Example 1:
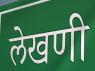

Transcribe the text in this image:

लेखणी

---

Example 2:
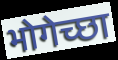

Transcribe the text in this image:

भोगेच्छा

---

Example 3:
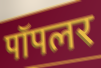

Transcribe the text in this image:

पॉपलर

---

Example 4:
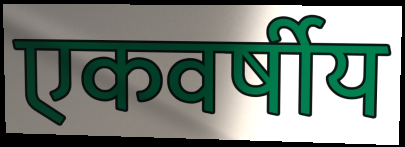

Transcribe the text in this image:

एकवर्षीय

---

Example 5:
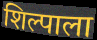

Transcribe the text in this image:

शिल्पाला